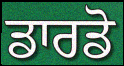
ਡਾਰਡੋ